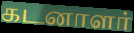
கடனாளர்